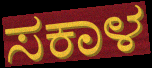
ಸಕಾಳ